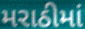
મરાઠીમાં